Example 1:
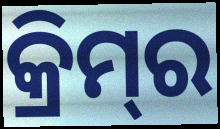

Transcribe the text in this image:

କ୍ରିମ୍‌ର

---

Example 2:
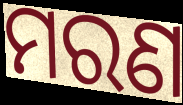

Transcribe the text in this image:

ମରଣ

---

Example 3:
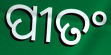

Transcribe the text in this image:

ପୀତଂ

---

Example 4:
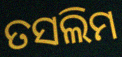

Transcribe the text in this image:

ତସଲିମ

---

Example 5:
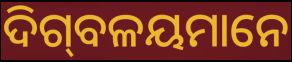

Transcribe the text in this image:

ଦିଗ୍‌ବଳୟମାନେ